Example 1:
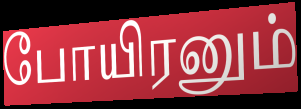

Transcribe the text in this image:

போயிரனும்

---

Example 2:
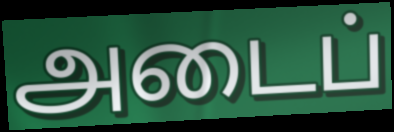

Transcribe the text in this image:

அடைப்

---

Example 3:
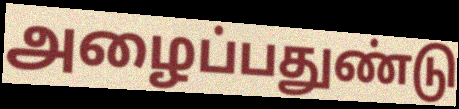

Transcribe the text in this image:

அழைப்பதுண்டு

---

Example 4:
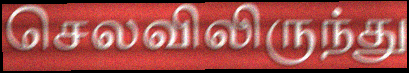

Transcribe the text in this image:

செலவிலிருந்து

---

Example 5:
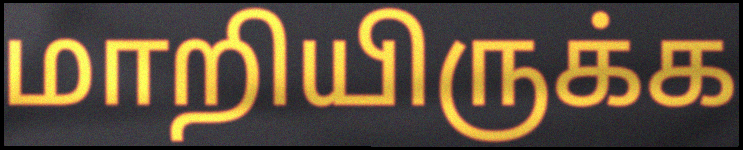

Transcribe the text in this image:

மாறியிருக்க